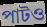
পাটও